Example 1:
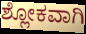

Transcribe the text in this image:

ಶ್ಲೋಕವಾಗಿ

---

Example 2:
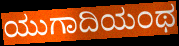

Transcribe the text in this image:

ಯುಗಾದಿಯಂಥ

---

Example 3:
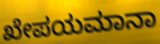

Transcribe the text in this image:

ಖೇಪಯಮಾನಾ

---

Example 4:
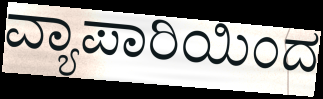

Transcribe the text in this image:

ವ್ಯಾಪಾರಿಯಿಂದ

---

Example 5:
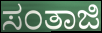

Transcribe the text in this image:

ಸಂತಾಜಿ